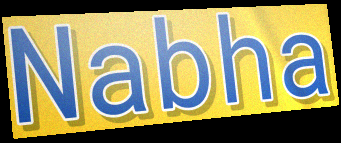
Nabha